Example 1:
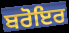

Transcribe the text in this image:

ਬਰੋਇਰ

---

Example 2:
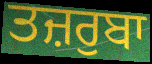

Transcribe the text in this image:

ਤਜ਼ਰੁਬਾ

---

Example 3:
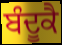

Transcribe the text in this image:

ਬੰਦੂਕੈ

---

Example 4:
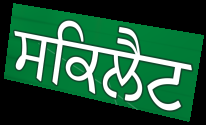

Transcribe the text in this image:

ਸਕਿਲੈਟ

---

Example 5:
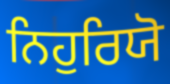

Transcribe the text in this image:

ਨਿਹੁਰਿਯੋ